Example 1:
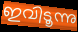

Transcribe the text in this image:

ഇവിടൂന്നു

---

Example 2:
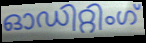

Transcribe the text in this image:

ഓഡിറ്റിംഗ്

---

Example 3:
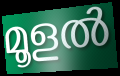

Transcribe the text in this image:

മൂളൽ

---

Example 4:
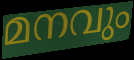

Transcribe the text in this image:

മനവും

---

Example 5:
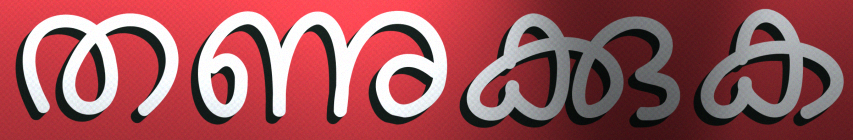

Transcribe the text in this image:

തണുക്കുക